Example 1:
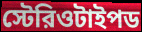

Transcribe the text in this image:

স্টেরিওটাইপড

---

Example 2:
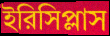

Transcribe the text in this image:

ইরিসিপ্লাস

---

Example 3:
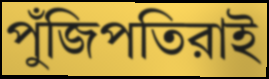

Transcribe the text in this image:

পুঁজিপতিরাই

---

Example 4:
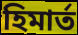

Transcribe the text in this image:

হিমার্ত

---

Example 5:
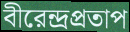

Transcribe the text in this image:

বীরেন্দ্রপ্রতাপ